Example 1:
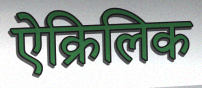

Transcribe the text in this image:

ऐक्रिलिक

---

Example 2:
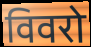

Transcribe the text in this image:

विवरो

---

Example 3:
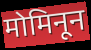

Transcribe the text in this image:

मोमिनून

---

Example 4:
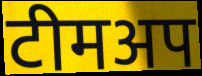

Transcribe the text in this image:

टीमअप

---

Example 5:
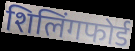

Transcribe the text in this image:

शिलिंगफोर्ड